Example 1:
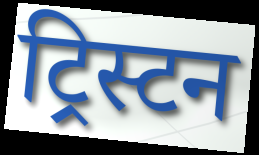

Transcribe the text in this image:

ट्रिस्टन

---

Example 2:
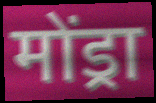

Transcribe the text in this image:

मोंड्रा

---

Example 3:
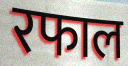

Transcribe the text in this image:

रफाल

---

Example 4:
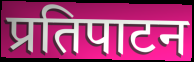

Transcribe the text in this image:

प्रतिपाटन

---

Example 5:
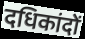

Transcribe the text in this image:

दधिकांदों